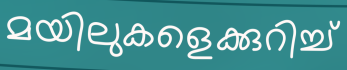
മയിലുകളെക്കുറിച്ച്